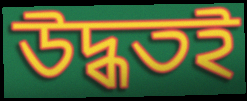
উদ্ধতই